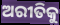
ଅରୀତିକୁ